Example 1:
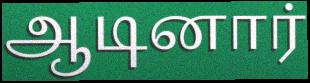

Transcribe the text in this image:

ஆடினார்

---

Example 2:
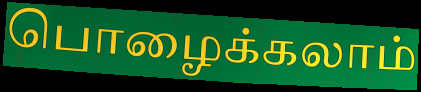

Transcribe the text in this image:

பொழைக்கலாம்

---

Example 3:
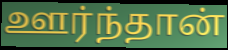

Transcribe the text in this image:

ஊர்ந்தான்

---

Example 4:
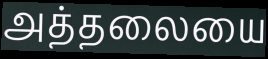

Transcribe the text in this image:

அத்தலையை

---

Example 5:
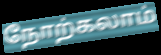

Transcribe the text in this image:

நோற்கலாம்